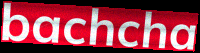
bachcha